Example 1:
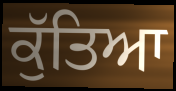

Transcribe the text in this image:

ਕੁੱਤਿਆ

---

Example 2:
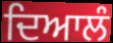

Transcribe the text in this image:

ਦਿਆਲੰ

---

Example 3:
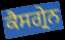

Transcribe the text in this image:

ਕੈਸਗ੍ਰੇਨ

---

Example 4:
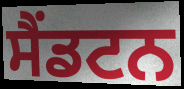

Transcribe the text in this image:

ਸੈਂਡਟਨ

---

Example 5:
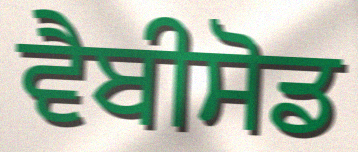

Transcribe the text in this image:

ਵੈਬੀਸੋਡ